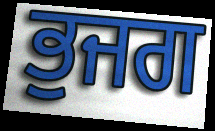
ਭੁਜਗ